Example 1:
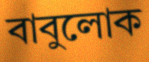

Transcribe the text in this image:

বাবুলোক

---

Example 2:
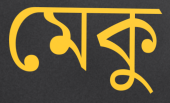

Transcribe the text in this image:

মেকু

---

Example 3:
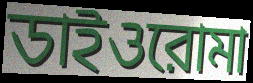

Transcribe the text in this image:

ডাইওরোমা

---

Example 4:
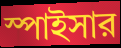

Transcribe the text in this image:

স্পাইসার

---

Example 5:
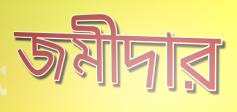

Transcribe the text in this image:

জমীদার